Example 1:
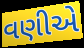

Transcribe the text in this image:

વણીએ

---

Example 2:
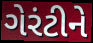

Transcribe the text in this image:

ગેરંટીને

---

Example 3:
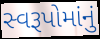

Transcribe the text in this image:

સ્વરૂપોમાંનું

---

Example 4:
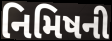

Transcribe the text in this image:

નિમિષની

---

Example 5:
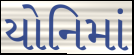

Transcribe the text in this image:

યોનિમાં